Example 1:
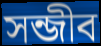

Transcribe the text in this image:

সন্জীব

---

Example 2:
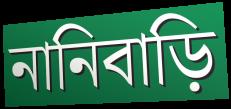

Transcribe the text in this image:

নানিবাড়ি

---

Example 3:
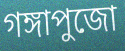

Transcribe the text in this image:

গঙ্গাপুজো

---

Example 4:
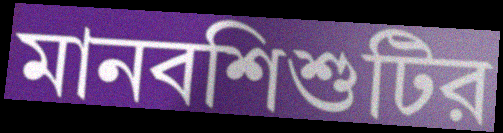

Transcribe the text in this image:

মানবশিশুটির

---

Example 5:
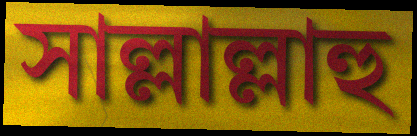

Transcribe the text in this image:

সাল্লাল্লাহু